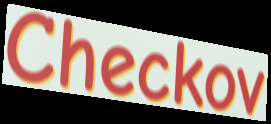
Checkov